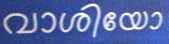
വാശിയോ